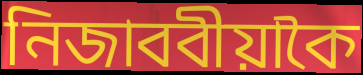
নিজাববীয়াকৈ